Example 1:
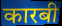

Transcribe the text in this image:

कारबी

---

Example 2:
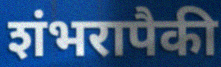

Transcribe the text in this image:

शंभरापैकी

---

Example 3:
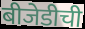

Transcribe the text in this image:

बीजेडीची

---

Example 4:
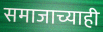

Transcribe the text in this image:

समाजाच्याही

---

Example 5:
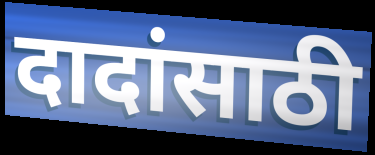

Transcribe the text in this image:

दादांसाठी